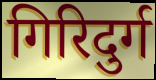
गिरिदुर्ग